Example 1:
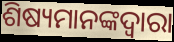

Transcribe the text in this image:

ଶିଷ୍ୟମାନଙ୍କଦ୍ୱାରା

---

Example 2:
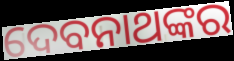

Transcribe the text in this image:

ଦେବନାଥଙ୍କର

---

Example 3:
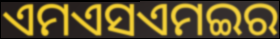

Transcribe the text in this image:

ଏମଏସଏମଇର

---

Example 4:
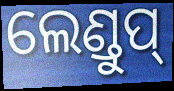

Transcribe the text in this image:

ଲେଣ୍ଡୁପ୍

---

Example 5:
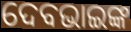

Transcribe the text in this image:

ଦେବଭାଇଙ୍କ